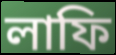
লাফি